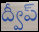
ద్వీప్